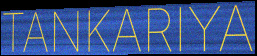
TANKARIYA